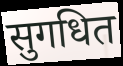
सुगधित